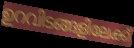
ഉറവിടങ്ങളിലേക്ക്